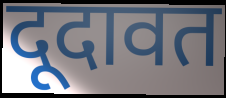
दूदावत